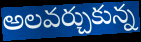
అలవర్చుకున్న